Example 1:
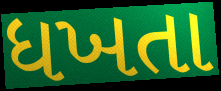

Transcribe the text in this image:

ધખતા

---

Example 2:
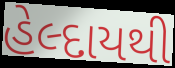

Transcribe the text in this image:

હેલ્દાયથી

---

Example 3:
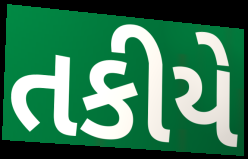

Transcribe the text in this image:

તકીયે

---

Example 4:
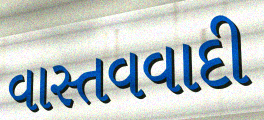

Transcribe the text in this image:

વાસ્તવવાદી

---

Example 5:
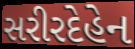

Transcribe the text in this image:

સરીરદેહેન